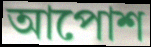
আপোশ